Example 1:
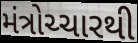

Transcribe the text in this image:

મંત્રોચ્ચારથી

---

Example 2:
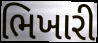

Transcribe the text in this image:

ભિખારી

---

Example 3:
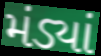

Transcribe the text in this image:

મંડ્યાં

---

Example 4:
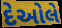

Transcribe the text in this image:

દેઓલે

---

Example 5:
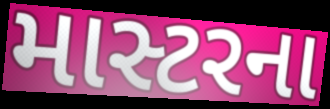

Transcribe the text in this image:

માસ્ટરના